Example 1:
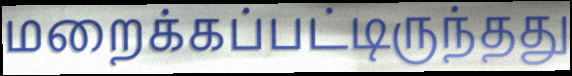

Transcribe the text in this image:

மறைக்கப்பட்டிருந்தது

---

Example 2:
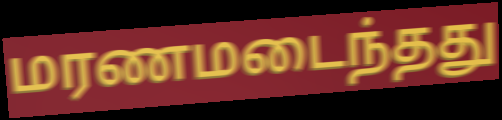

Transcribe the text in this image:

மரணமடைந்தது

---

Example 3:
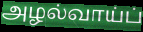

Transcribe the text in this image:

அழல்வாய்ப்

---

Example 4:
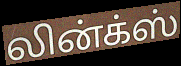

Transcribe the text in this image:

லின்க்ஸ்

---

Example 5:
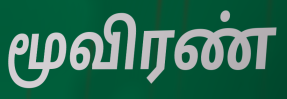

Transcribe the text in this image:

மூவிரண்